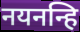
नयनन्हि